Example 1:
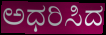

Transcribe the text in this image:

ಅಧರಿಸಿದ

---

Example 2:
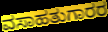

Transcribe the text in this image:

ವಸಾಹತುಗಾರರ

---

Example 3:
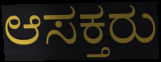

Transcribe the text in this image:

ಆಸಕ್ತರು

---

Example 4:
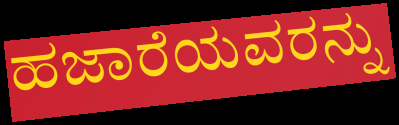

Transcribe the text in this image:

ಹಜಾರೆಯವರನ್ನು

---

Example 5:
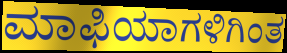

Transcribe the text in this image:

ಮಾಫಿಯಾಗಳಿಗಿಂತ